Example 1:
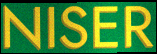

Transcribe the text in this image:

NISER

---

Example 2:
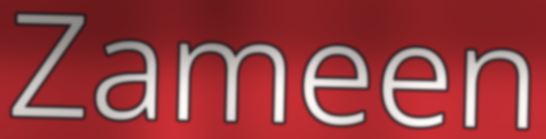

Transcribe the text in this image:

Zameen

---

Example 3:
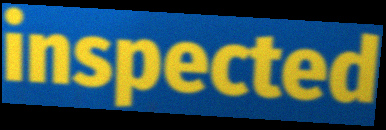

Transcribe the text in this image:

inspected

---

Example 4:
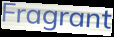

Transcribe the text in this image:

Fragrant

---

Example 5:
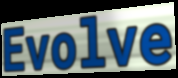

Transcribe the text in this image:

Evolve